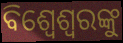
ବିଶ୍ୱେଶ୍ୱରଙ୍କୁ